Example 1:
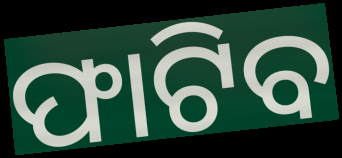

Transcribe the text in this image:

ଫାଟିବ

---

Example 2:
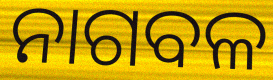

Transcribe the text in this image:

ନାଗବଳ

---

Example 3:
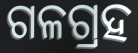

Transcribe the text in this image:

ଗଳଗ୍ରହ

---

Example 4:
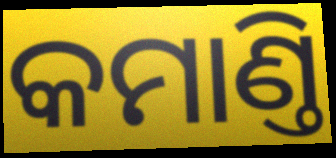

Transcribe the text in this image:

କମାଣ୍ତି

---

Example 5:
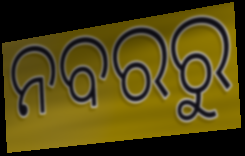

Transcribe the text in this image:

ନବରରୁ